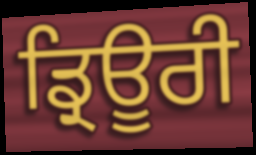
ਡ੍ਰਿਊਰੀ